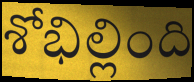
శోభిల్లింది